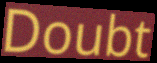
Doubt